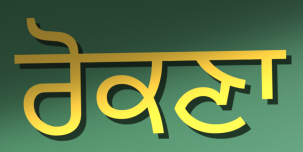
ਰੋਕਣਾ